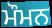
ਮੌਮਨ